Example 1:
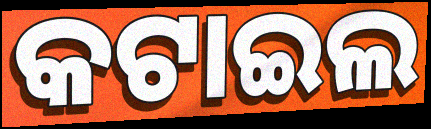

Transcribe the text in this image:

କଟାଇଲ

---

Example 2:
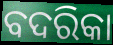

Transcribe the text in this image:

ବଦରିକା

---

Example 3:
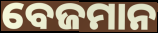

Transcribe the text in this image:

ବେଜମାନ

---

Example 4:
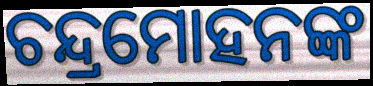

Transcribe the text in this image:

ଚନ୍ଦ୍ରମୋହନଙ୍କ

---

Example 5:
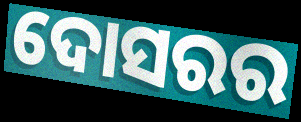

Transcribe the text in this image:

ଦୋସରର